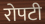
रोपटी